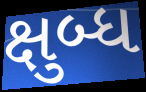
ક્ષુબ્ધ